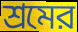
শ্রমের